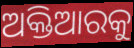
ଅକ୍ତିଆରକୁ